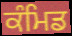
ਕੰਮਿਡ